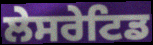
ਲੇਸਰੇਟਿਡ